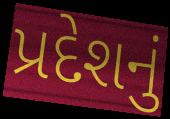
પ્રદેશનું